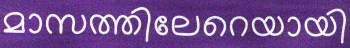
മാസത്തിലേറെയായി